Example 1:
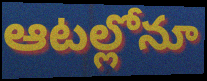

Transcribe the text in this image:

ఆటల్లోనూ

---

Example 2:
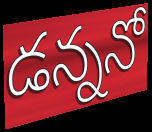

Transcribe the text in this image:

డన్ననో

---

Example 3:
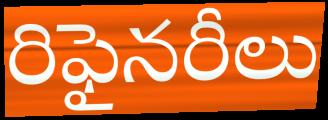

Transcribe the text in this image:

రిఫైనరీలు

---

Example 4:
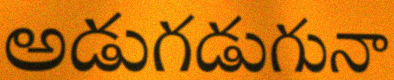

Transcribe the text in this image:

అడుగడుగునా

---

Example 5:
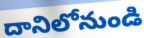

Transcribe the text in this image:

దానిలోనుండి